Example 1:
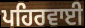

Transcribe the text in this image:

ਪਹਿਰਵਾਈ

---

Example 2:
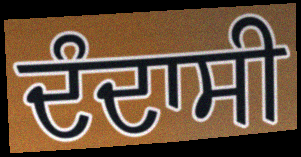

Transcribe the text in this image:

ਦੰਦਾਸੀ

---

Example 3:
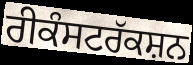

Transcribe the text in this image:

ਰੀਕੰਸਟਰੱਕਸ਼ਨ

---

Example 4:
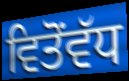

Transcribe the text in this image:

ਵਿਤੋਂਵੱਧ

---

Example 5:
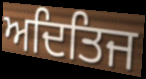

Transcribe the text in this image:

ਅਦਿਤਿਜ